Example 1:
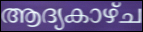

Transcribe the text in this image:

ആദ്യകാഴ്ച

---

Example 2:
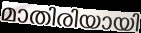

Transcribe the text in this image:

മാതിരിയായി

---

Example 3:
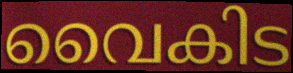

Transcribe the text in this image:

വൈകിട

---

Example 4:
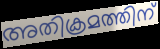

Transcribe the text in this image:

അതിക്രമത്തിന്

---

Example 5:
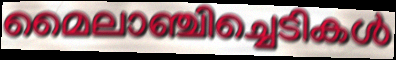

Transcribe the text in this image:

മൈലാഞ്ചിച്ചെടികൾ